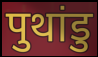
पुथांडु